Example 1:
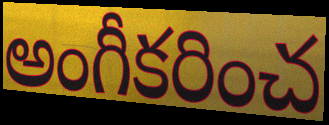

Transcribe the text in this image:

అంగీకరించ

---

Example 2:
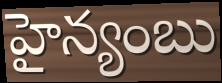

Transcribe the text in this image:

హైన్యంబు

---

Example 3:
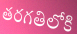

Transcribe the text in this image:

తరగతిలోకి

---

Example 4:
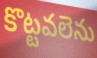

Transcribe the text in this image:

కొట్టవలెను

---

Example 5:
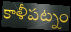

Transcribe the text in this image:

కాళీపట్నం